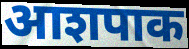
आशपाक